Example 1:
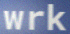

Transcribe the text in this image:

wrk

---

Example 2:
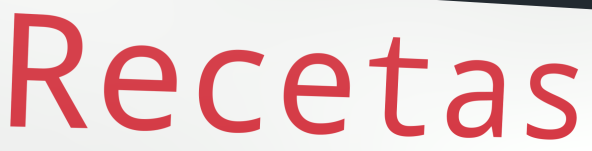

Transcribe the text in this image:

Recetas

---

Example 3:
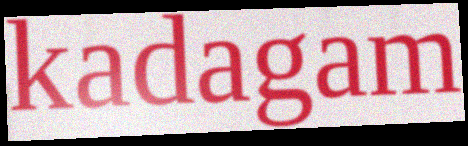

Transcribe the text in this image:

kadagam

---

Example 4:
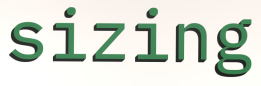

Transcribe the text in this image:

sizing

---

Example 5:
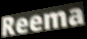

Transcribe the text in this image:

Reema